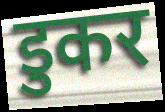
डुकर